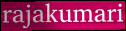
rajakumari